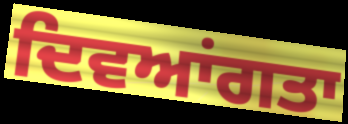
ਦਿਵਆਂਗਤਾ